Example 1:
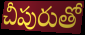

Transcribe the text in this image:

చీపురుతో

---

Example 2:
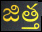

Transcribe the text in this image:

జిత్త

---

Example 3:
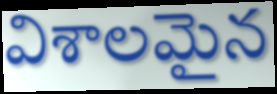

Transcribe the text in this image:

విశాలమైన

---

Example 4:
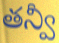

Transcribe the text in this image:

తన్వీ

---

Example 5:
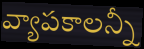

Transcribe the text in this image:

వ్యాపకాలన్నీ